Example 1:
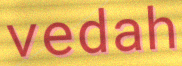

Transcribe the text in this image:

vedah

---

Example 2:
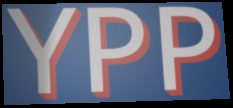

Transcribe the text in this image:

YPP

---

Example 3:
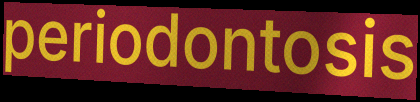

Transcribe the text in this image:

periodontosis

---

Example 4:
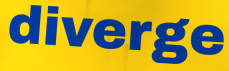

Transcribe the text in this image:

diverge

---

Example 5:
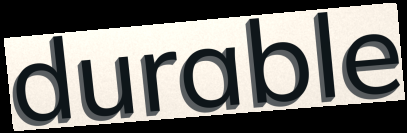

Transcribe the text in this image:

durable